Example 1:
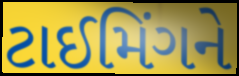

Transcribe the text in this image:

ટાઈમિંગને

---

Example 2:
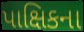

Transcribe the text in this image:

પાક્ષિકના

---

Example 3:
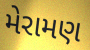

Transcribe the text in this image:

મેરામણ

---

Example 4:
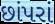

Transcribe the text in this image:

છાંપરાં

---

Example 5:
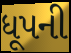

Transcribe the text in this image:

ધૂપની